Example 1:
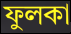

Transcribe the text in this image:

ফুলকা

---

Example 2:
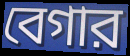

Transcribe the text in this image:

বেগার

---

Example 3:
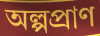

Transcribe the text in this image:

অল্পপ্রাণ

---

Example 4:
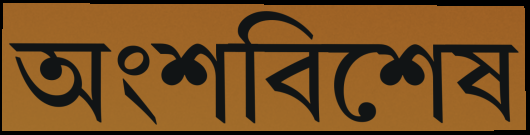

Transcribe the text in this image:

অংশবিশেষ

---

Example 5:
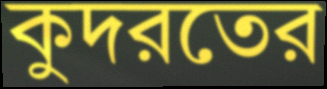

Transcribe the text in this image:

কুদরতের